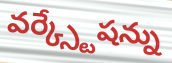
వర్క్స్టేషన్ను